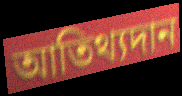
আতিথ্যদান